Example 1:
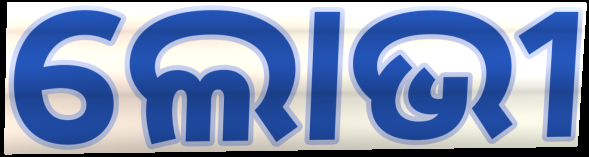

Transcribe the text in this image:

ଲୋଭୀ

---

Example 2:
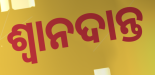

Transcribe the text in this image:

ଶ୍ଵାନଦାନ୍ତ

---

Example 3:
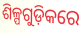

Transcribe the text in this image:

ଶିଳ୍ପଗୁଡ଼ିକରେ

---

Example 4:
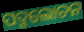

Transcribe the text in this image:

ପଦ୍ମଲୋଚନ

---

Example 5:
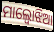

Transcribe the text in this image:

ମାଲ୍ବୋଝିଆ